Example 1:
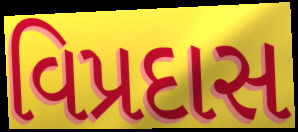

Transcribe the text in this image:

વિપ્રદાસ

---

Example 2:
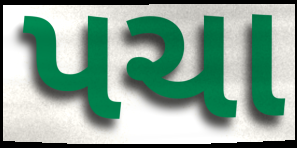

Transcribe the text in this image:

પચા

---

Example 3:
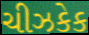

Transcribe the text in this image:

ચીઝકેક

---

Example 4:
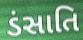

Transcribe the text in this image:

ડંસાતિ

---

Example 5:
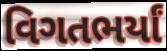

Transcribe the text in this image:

વિગતભર્યાં